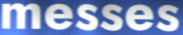
messes